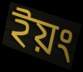
ইয়ং